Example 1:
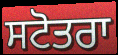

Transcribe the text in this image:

ਸਟੋਤਰਾ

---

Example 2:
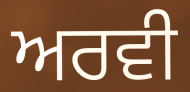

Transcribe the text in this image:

ਅਰਵੀ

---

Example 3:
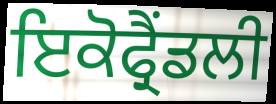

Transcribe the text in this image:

ਇਕੋਫ੍ਰੈਂਡਲੀ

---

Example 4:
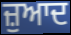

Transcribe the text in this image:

ਜ਼ੁਆਦ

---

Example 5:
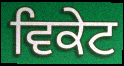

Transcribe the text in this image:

ਵਿਕੇਟ